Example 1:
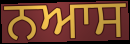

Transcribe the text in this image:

ਨਆਸ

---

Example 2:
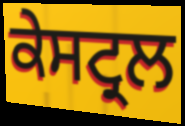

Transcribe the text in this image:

ਕੇਸਟ੍ਰਲ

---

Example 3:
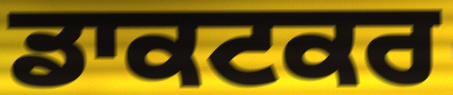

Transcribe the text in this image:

ਡਾਕਟਕਰ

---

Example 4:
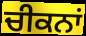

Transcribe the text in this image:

ਚੀਕਨਾਂ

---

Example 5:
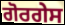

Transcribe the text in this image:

ਗੋਰਗੇਸ